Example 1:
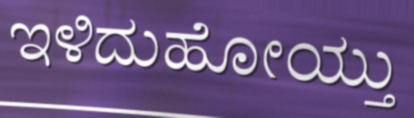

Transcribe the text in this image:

ಇಳಿದುಹೋಯ್ತು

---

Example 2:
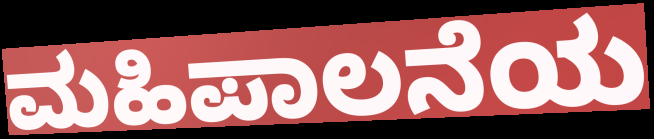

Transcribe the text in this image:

ಮಹಿಪಾಲನೆಯ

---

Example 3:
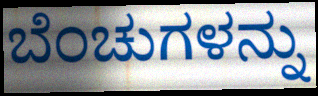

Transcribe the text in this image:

ಬೆಂಚುಗಳನ್ನು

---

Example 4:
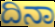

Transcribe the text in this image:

ದಿನಾ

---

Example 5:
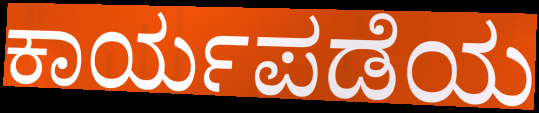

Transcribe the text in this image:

ಕಾರ್ಯಪಡೆಯ